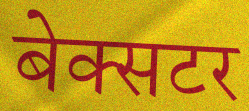
बेक्सटर